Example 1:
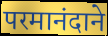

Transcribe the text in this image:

परमानंदाने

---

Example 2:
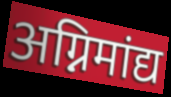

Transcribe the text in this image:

अग्निमांद्य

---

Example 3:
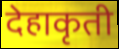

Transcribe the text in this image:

देहाकृती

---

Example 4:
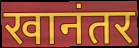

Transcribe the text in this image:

खानंतर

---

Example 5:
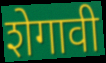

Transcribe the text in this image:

शेगावी